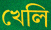
খেলি